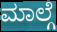
ಮಾಲ್ಗೆ